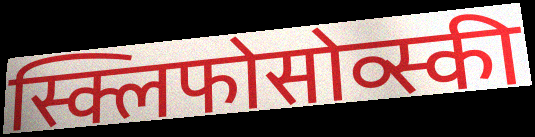
स्क्लिफोसोव्स्की